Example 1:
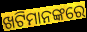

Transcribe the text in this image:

ଖଟିମାନଙ୍କରେ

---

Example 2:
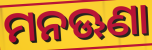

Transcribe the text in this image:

ମନଊଣା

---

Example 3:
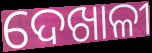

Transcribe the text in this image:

ଦେଖାଳୀ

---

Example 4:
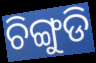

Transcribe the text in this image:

ଚିଙ୍ଗୁଡି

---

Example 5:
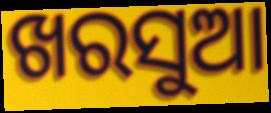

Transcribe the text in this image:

ଖରସୁଆ